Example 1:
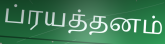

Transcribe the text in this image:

ப்ரயத்தனம்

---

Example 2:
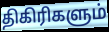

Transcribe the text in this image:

திகிரிகளும்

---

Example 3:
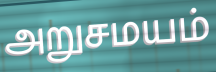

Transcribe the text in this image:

அறுசமயம்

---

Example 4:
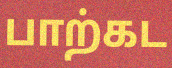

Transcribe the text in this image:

பாற்கட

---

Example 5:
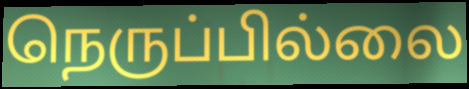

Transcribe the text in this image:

நெருப்பில்லை